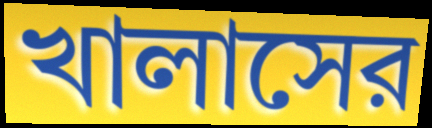
খালাসের